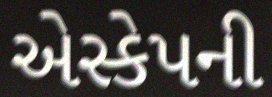
એસ્કેપની